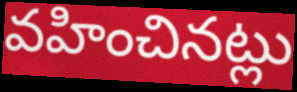
వహించినట్లు